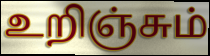
உறிஞ்சும்